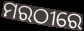
ମରଠୀରେ